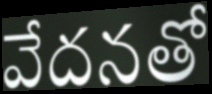
వేదనతో